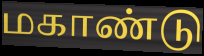
மகாண்டு